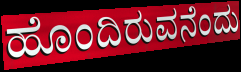
ಹೊಂದಿರುವನೆಂದು